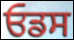
ਓਡਸ